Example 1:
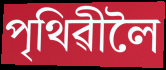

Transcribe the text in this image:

পৃথিৱীলৈ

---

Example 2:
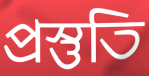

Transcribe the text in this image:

প্ৰস্তুতি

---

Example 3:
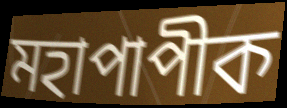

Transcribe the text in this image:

মহাপাপীক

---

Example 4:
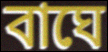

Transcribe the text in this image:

বাঘে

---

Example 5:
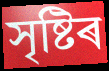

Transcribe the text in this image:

সৃষ্টিৰ